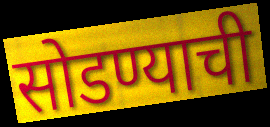
सोडण्याची